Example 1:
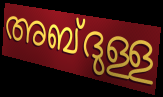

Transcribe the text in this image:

അബ്ദുള്ള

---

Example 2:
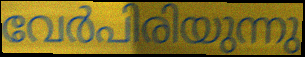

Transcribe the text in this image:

വേർപിരിയുന്നു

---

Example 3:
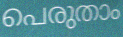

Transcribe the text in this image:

പെരുതാം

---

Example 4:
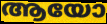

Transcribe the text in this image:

ആയോ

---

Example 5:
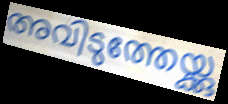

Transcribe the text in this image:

അവിടുത്തേയ്ക്കു